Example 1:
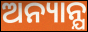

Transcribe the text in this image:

ଅନ୍ୟାନ୍ଯ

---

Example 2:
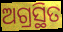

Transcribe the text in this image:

ଅଗ୍ରସ୍ଥିତ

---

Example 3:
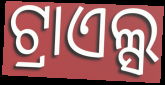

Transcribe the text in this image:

ଟ୍ରାଏଲ୍ସ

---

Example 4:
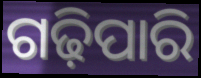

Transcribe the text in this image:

ଗଢ଼ିପାରି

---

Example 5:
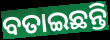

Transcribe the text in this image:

ବତାଇଛନ୍ତି